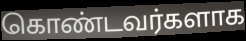
கொண்டவர்களாக